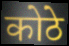
कोठे